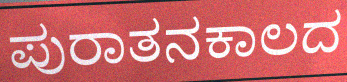
ಪುರಾತನಕಾಲದ